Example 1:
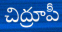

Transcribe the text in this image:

చిద్రూపీ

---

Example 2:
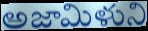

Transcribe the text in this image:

అజామిళుని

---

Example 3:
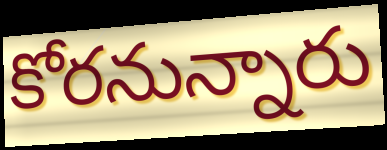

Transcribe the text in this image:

కోరనున్నారు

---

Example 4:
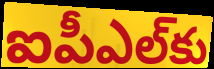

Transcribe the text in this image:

ఐపీఎల్‌కు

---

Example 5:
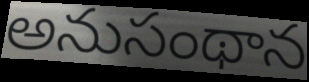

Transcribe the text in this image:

అనుసంథాన